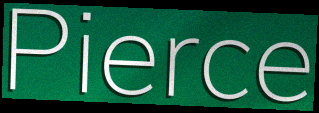
Pierce